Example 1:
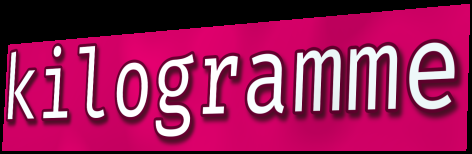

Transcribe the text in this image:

kilogramme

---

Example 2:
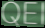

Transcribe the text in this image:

QEI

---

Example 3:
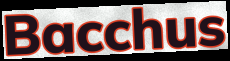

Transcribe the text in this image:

Bacchus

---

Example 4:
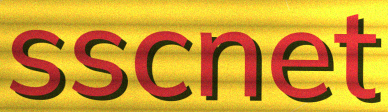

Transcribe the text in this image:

sscnet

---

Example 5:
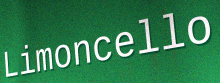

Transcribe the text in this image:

Limoncello